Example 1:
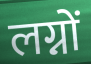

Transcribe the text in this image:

लग्नों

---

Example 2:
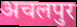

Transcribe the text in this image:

अचलपुर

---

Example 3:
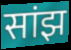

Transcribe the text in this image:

सांझ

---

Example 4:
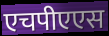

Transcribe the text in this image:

एचपीएएस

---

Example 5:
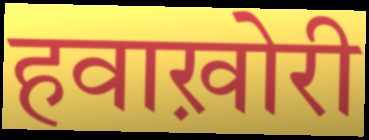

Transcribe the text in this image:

हवाख़ोरी